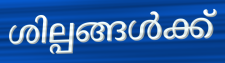
ശില്പങ്ങൾക്ക്